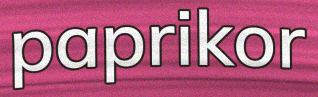
paprikor